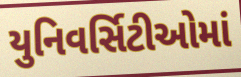
યુનિવર્સિટીઓમાં